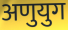
अणुयुग